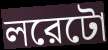
লরেটো